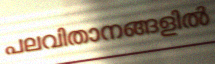
പലവിതാനങ്ങളിൽ